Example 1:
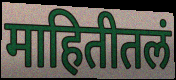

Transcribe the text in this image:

माहितीतलं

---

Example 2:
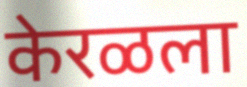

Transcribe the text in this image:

केरळला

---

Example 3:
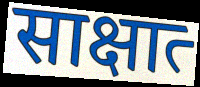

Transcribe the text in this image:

साक्षात्‍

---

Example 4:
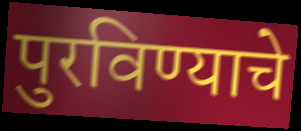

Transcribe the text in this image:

पुरविण्याचे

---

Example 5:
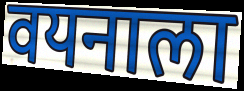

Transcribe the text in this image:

वयनाला